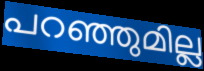
പറഞ്ഞുമില്ല